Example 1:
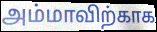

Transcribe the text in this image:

அம்மாவிற்காக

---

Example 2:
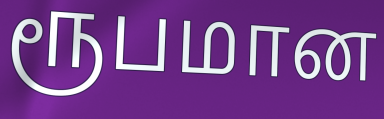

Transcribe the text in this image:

ரூபமான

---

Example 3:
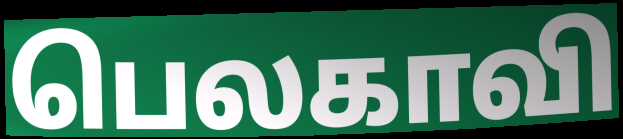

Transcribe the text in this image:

பெலகாவி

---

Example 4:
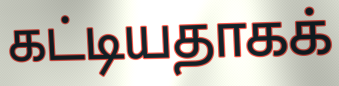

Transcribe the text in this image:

கட்டியதாகக்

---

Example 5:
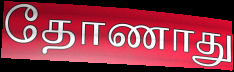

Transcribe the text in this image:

தோணாது